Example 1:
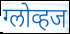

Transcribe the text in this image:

ग्लोव्हज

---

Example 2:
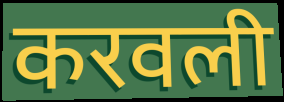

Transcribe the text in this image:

करवली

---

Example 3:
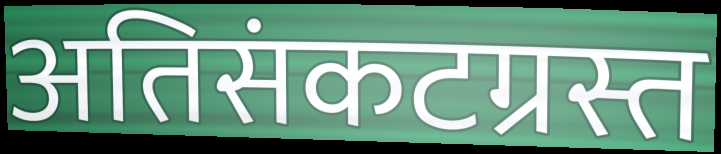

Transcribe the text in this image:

अतिसंकटग्रस्त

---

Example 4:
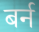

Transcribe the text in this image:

बर्न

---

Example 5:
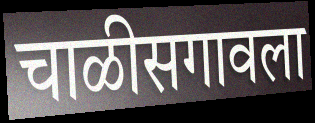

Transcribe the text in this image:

चाळीसगावला